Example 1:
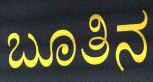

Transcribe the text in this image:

ಬೂತಿನ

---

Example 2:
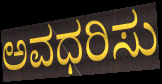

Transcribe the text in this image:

ಅವಧರಿಸು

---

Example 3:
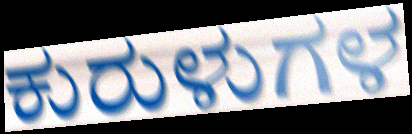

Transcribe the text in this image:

ಕುರುಳುಗಳ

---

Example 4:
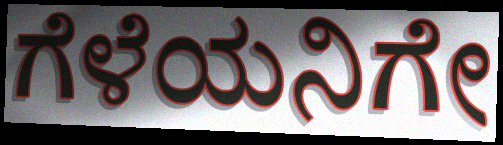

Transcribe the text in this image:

ಗೆಳೆಯನಿಗೇ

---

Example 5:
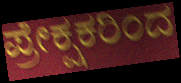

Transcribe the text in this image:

ಪ್ರೇಕ್ಷಕರಿಂದ